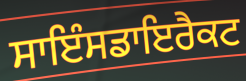
ਸਾਇੰਸਡਾਇਰੈਕਟ